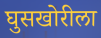
घुसखोरीला